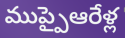
ముప్పైఆరేళ్ల